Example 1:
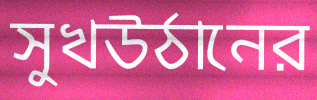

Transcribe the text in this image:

সুখউঠানের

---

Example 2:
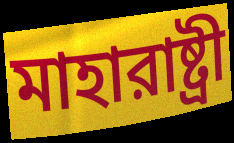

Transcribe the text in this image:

মাহারাষ্ট্রী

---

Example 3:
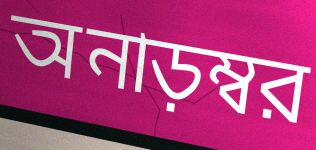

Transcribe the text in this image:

অনাড়ম্বর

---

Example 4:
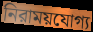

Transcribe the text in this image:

নিরাময়যোগ্য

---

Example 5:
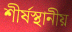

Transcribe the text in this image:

শীর্ষস্থানীয়